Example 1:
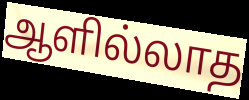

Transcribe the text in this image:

ஆளில்லாத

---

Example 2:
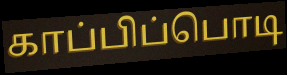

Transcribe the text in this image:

காப்பிப்பொடி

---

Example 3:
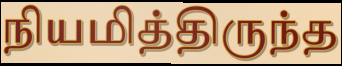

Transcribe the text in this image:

நியமித்திருந்த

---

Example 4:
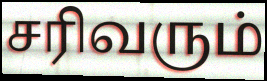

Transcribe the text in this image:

சரிவரும்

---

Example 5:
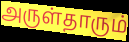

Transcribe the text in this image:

அருள்தாரும்